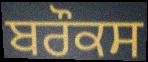
ਬਰੌਕਸ